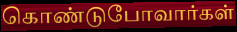
கொண்டுபோவார்கள்